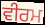
ਵੀਰਮ